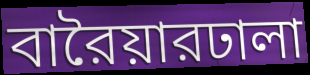
বারৈয়ারঢালা